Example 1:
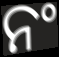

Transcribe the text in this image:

ନଂ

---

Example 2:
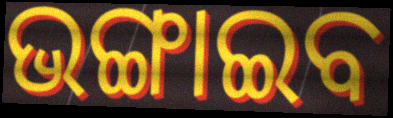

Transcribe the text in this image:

ଭଙ୍ଗାଇବ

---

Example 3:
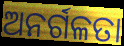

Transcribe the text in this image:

ଅନର୍ଗଳତା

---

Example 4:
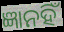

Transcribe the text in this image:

ଜ୍ଞାନହିଁ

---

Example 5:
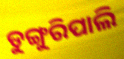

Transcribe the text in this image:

ଡୁଙ୍ଗୁରିପାଲି